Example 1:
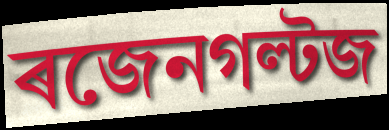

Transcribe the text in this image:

ৰজেনগল্টজ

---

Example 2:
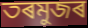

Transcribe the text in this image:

তৰমুজৰ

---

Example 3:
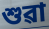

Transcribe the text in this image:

শুৱা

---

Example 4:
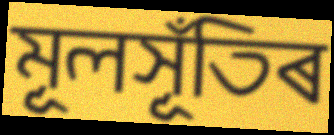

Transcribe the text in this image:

মূলসূঁতিৰ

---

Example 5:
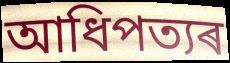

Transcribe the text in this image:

আধিপত্যৰ